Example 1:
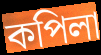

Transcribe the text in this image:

কপিলা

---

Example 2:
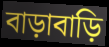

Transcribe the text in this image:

বাড়াবাড়ি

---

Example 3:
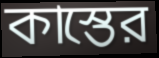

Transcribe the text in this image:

কাস্তের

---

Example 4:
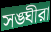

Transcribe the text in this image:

সঙ্ঘীরা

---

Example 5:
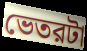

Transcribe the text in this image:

ভেতরটা